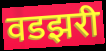
वडझरी